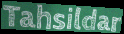
Tahsildar